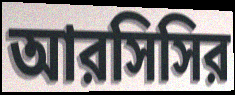
আরসিসির